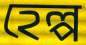
হেল্প